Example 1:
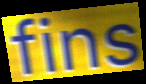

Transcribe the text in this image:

fins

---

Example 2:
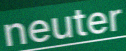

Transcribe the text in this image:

neuter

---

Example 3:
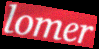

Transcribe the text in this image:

lomer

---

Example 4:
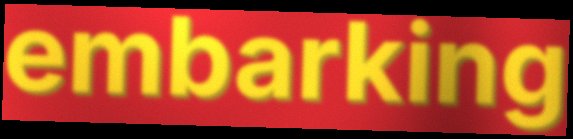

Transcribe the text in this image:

embarking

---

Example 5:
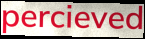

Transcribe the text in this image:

percieved